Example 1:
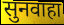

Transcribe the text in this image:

सुनवाहा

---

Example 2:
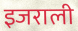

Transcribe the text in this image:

इजराली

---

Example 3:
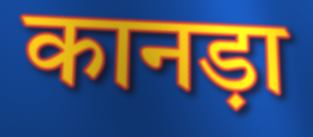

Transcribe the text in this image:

कानड़ा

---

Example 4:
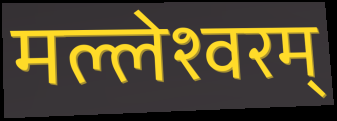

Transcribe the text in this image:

मल्लेश्वरम्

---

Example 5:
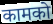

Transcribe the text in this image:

कामको